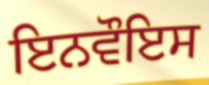
ਇਨਵੌਇਸ